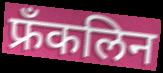
फ्रॅंकलिन